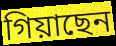
গিয়াছেন